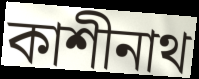
কাশীনাথ